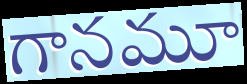
గానమూ